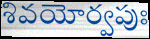
శివయోర్వపుః